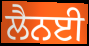
ਲੈਨਈ